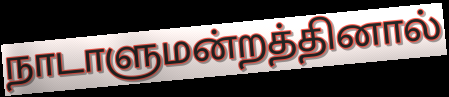
நாடாளுமன்றத்தினால்